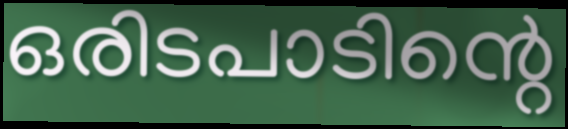
ഒരിടപാടിന്റെ